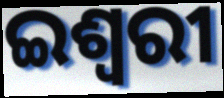
ଇଶ୍ୱରୀ